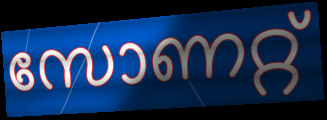
സോണറ്റ്